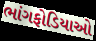
ભાંગફોડિયાઓ